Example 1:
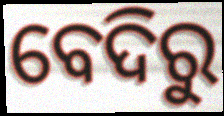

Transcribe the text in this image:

ବେଦିରୁ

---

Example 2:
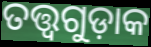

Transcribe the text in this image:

ତତ୍ତ୍ୱଗୁଡ଼ାକ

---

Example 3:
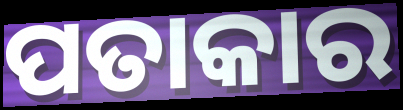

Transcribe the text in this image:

ପତାକାର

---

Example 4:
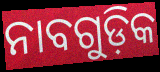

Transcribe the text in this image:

ନାବଗୁଡ଼ିକ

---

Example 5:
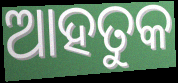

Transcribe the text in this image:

ଆହତୁକ